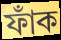
ফাঁক